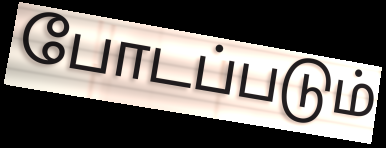
போடப்படும்